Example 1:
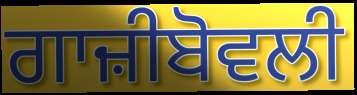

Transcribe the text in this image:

ਗਾਜ਼ੀਬੋਵਲੀ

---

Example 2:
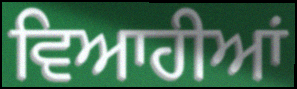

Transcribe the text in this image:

ਵਿਆਹੀਆਂ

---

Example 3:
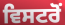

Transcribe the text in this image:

ਵਿਸਟਰੋਂ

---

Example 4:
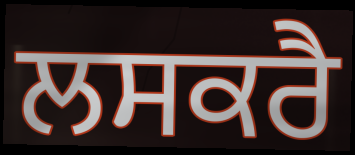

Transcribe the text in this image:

ਲਸਕਰੈ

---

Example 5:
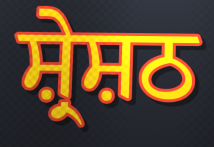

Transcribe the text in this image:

ਸ਼੍ਰੇਸ਼ਠ